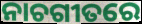
ନାଚଗୀତରେ